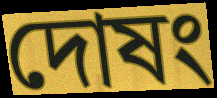
দোষং